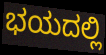
ಭಯದಲ್ಲಿ